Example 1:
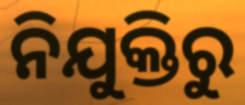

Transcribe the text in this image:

ନିଯୁକ୍ତିରୁ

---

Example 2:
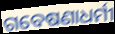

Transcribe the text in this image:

ଗବେଷଣାଧର୍ମୀ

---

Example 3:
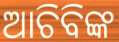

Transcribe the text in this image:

ଆଚିବିଙ୍କ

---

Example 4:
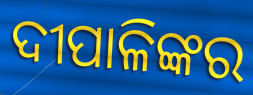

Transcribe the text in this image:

ଦୀପାଳିଙ୍କର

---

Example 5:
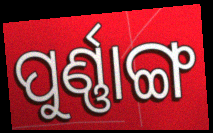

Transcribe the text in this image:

ପୁର୍ଣ୍ଣାଙ୍ଗ